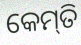
କେମ୍‍ତି